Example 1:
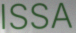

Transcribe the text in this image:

ISSA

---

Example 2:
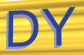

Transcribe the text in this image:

DY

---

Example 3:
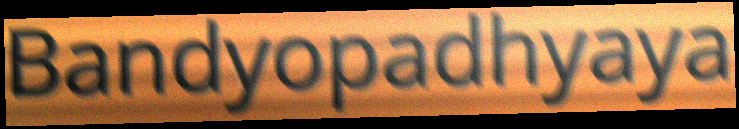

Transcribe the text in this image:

Bandyopadhyaya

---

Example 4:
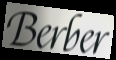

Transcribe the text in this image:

Berber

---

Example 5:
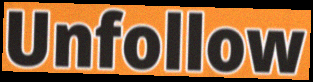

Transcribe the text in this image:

Unfollow